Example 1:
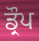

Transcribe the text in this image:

ਡ੍ਰੌਪ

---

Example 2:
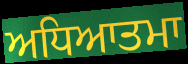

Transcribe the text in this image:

ਅਧਿਆਤਮਾ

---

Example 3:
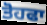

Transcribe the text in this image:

ਤੋਹਫਾ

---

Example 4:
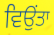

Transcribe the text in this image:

ਵਿਉਂਤਾ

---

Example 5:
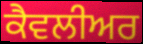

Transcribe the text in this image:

ਕੈਵਲੀਅਰ